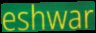
eshwar